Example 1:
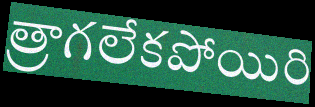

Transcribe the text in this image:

త్రాగలేకపోయిరి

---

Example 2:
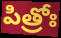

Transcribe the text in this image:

పిత్రోః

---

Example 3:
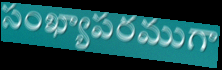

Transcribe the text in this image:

సంఖ్యాపరముగా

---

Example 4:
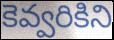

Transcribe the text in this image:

కెవ్వరికిని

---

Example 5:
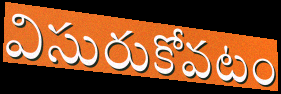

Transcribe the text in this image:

విసురుకోవటం